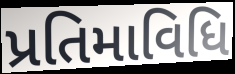
પ્રતિમાવિધિ